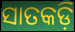
ସାତକଡ଼ି